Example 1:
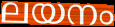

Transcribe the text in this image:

ലയനം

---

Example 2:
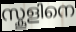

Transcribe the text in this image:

സ്കൂളിനെ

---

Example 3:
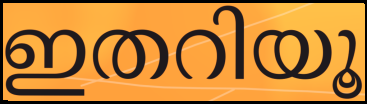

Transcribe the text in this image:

ഇതറിയൂ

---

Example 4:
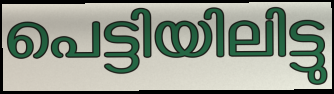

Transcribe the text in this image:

പെട്ടിയിലിട്ടു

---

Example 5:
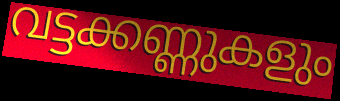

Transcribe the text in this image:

വട്ടക്കണ്ണുകളും